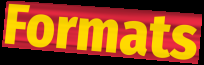
Formats